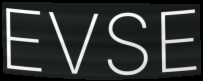
EVSE